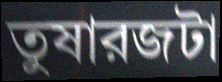
তুষারজটা